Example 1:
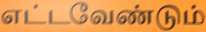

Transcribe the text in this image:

எட்டவேண்டும்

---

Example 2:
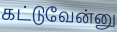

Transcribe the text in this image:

கட்டுவேன்னு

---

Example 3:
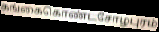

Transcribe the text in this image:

கங்கைகொண்டசோழபுரம்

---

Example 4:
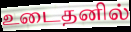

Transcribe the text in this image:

உடைதனில்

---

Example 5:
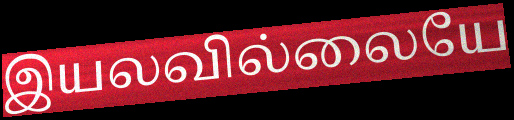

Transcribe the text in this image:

இயலவில்லையே